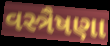
વસ્ત્રૈષણા